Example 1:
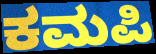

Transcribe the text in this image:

ಕಮಪಿ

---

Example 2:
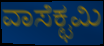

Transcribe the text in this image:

ವಾಸೆಕ್ಟಮಿ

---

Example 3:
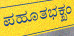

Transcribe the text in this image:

ಪಹೂತಭಕ್ಖಂ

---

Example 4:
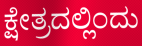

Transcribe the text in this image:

ಕ್ಷೇತ್ರದಲ್ಲಿಂದು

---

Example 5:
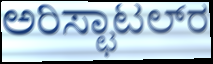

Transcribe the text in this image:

ಅರಿಸ್ಟಾಟಲ್‍ರ